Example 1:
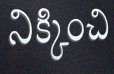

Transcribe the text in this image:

నిక్కించి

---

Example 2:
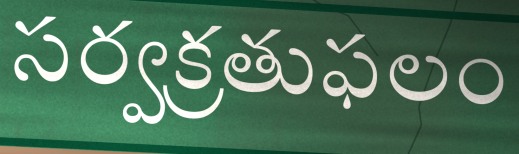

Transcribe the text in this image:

సర్వక్రతుఫలం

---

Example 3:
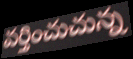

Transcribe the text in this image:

వర్తించుచున్న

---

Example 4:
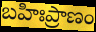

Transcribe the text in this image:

బహిఃప్రాణం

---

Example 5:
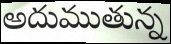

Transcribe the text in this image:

అదుముతున్న